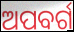
ଅପବର୍ଗ